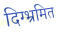
दिग्भ्रमित